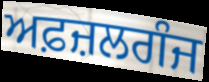
ਅਫ਼ਜ਼ਲਗੰਜ